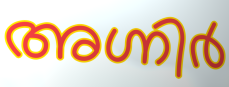
അഗ്നിർ